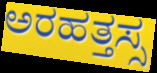
ಅರಹತ್ತಸ್ಸ